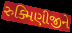
રુક્મિણીજીને